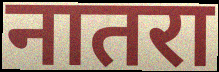
नातरा